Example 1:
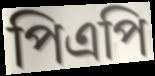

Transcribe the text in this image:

পিএপি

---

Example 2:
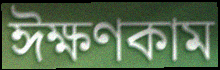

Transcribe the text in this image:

ঈক্ষণকাম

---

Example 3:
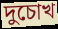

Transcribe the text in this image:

দুচোখ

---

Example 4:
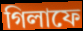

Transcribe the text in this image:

গিলাফে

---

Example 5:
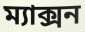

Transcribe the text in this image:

ম্যাক্সন